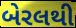
બેરલથી